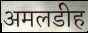
अमलडीह